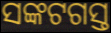
ସଙ୍କଟଗସ୍ତ